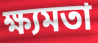
ক্ষ্যমতা